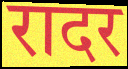
रादर